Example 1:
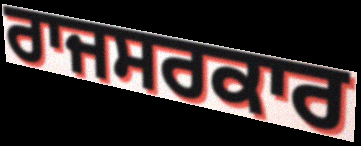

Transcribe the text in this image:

ਰਾਜਸਰਕਾਰ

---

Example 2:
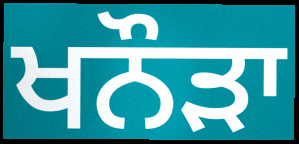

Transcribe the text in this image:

ਖਨੌੜਾ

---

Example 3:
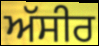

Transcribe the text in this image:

ਅੱਸੀਰ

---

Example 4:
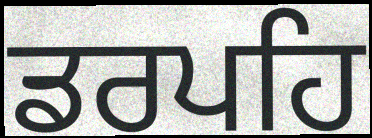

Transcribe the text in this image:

ਡਰਪਹਿ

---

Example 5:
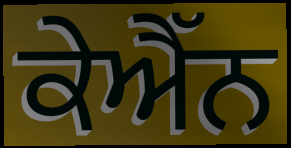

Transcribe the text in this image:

ਕੇਐੱਨ